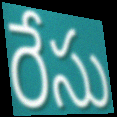
రేసు